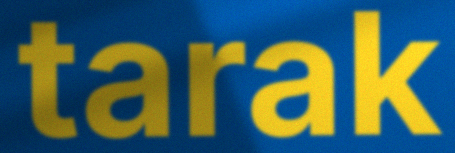
tarak